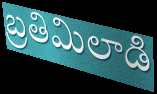
బ్రతిమిలాడి